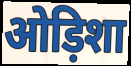
ओड़िशा